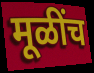
मूळींच